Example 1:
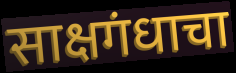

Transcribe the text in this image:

साक्षगंधाचा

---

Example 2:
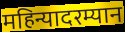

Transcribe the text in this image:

महिन्यादरम्यान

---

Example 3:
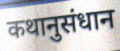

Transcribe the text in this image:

कथानुसंधान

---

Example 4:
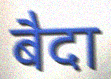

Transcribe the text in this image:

बैदा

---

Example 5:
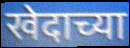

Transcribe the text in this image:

खेदाच्या